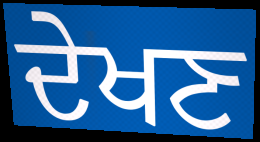
ਦੇਖਣ